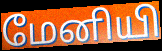
மேனியி